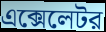
এক্সেলেটর